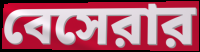
বেসেরার